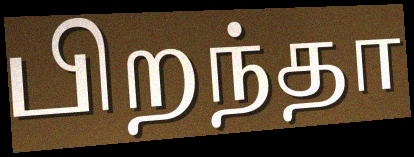
பிறந்தா